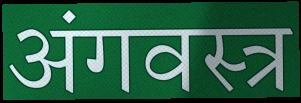
अंगवस्त्र